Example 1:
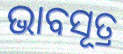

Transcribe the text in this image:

ଭାବସୂତ୍ର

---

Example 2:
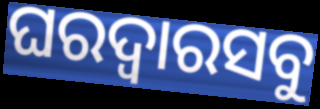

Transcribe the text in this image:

ଘରଦ୍ୱାରସବୁ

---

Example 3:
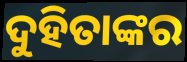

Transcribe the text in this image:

ଦୁହିତାଙ୍କର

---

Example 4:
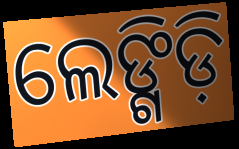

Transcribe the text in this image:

ଲେଙ୍ଗିଡ଼ି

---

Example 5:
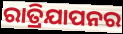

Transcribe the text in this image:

ରାତ୍ରିଯାପନର